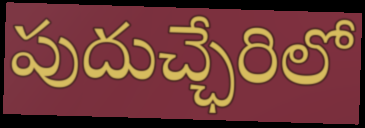
పుదుచ్ఛేరిలో